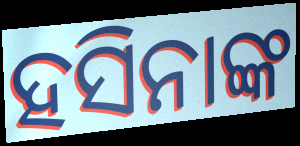
ହସିନାଙ୍କ